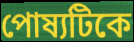
পোষ্যটিকে